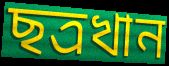
ছত্রখান